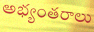
అభ్యంతరాలు